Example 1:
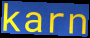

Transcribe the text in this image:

karn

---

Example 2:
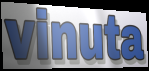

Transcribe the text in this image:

vinuta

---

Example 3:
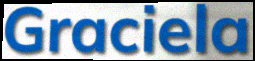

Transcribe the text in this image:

Graciela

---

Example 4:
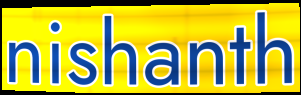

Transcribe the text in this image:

nishanth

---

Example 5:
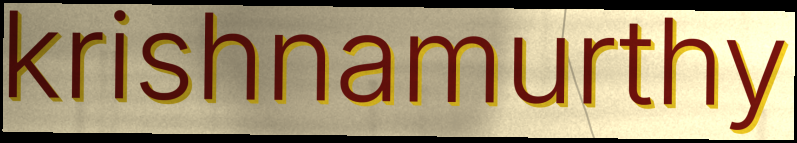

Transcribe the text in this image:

krishnamurthy